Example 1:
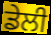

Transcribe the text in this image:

ਡੇਲੀ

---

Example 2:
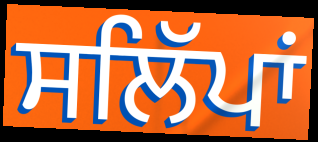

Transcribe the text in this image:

ਸਲਿੱਪਾਂ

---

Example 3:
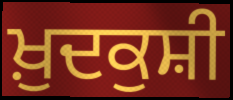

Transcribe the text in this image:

ਖ਼ੁਦਕੁਸ਼ੀ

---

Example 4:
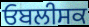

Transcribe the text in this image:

ਓਬਲੀਸਕ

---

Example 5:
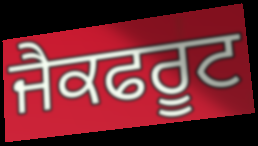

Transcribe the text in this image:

ਜੈਕਫਰੂਟ